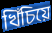
খিঁচিয়ে